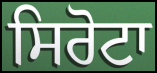
ਸਿਰੋਟਾ